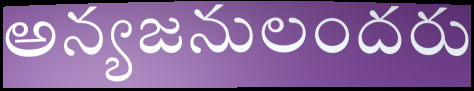
అన్యజనులందరు